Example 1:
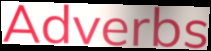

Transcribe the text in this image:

Adverbs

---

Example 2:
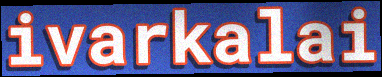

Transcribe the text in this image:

ivarkalai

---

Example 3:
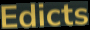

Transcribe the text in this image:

Edicts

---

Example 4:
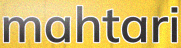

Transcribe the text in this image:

mahtari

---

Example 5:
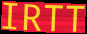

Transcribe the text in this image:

IRTT